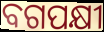
ବଗପକ୍ଷୀ